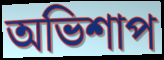
অভিশাপ